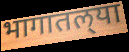
भागातल्या